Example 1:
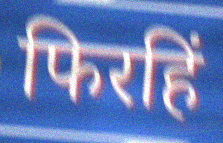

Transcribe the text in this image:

फिरहिं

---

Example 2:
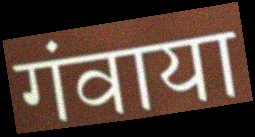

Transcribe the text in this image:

गंवाया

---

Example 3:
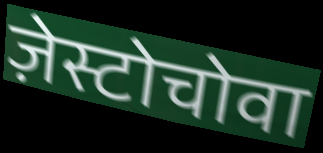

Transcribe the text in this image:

ज़ेस्टोचोवा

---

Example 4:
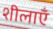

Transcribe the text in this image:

शीलाएँ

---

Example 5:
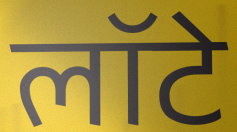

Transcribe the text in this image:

लॉटे